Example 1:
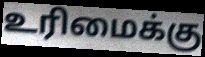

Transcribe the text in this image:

உரிமைக்கு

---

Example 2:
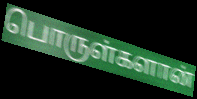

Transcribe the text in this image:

பொருள்களான்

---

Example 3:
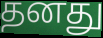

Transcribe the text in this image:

தனது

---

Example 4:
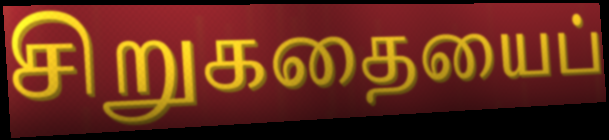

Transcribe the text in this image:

சிறுகதையைப்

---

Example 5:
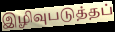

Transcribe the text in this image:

இழிவுபடுத்தப்